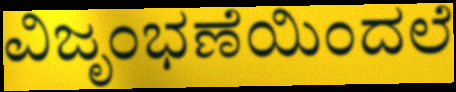
ವಿಜೃಂಭಣೆಯಿಂದಲೆ